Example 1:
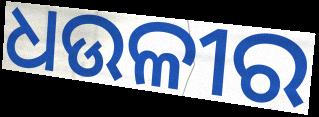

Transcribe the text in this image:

ଧଉଳୀର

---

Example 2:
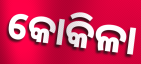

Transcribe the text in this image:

କୋକିଳା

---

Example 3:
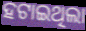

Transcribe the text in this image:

ହଟାଇଥିଲା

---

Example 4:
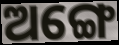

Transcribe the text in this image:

ଅଙ୍ଗେ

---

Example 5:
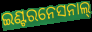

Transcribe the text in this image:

ଇଣ୍ଟରନେସନାଲ୍